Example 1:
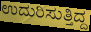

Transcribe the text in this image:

ಉದುರಿಸುತ್ತಿದ್ದ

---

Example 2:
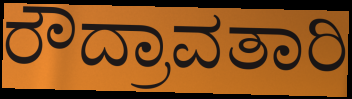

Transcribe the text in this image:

ರೌದ್ರಾವತಾರಿ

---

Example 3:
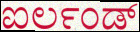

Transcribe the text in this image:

ಐರ್ಲಂಡ್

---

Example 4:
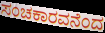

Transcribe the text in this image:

ಸಂಚಕಾರವನೆಂದ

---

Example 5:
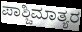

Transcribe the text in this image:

ಪಾಶ್ಚಿಮಾತ್ಯರ